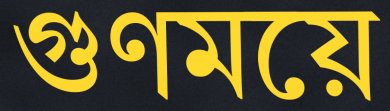
গুণময়ে